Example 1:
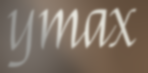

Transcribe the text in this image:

ymax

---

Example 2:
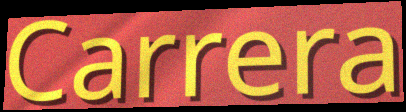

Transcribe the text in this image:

Carrera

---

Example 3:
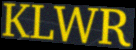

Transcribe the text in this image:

KLWR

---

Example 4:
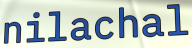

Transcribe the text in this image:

nilachal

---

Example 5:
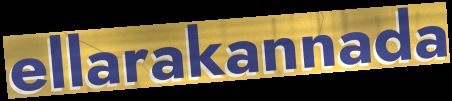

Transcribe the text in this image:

ellarakannada